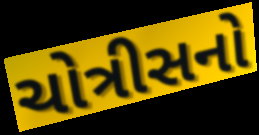
ચોત્રીસનો